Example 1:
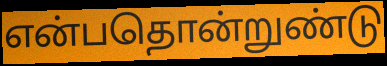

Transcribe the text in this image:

என்பதொன்றுண்டு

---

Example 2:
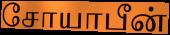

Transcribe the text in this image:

சோயாபீன்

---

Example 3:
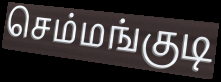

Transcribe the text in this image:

செம்மங்குடி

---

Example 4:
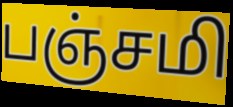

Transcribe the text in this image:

பஞ்சமி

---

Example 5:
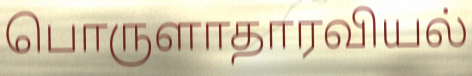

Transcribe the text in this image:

பொருளாதாரவியல்